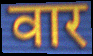
वार